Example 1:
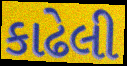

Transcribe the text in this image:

કાઢેલી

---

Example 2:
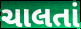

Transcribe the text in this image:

ચાલતાં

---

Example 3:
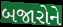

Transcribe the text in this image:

બજારોને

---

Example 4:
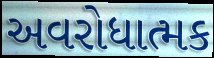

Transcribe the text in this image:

અવરોધાત્મક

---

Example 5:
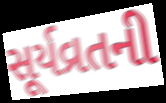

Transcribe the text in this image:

સૂર્યવ્રતની